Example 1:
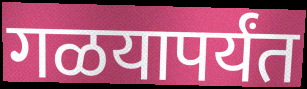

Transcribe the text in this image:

गळयापर्यंत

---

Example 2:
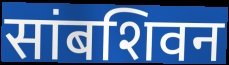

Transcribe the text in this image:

सांबशिवन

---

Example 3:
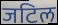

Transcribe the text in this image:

जटिल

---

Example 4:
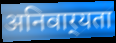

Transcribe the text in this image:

अनिवार्यता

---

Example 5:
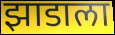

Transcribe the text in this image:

झाडाला